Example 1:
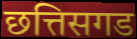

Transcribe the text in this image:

छत्तिसगड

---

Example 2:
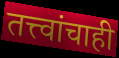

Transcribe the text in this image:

तत्त्वांचाही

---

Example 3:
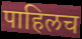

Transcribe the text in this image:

पाहिलच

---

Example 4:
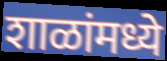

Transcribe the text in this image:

शाळांमध्ये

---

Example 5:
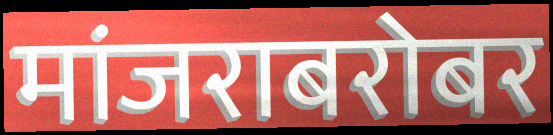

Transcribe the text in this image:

मांजराबरोबर